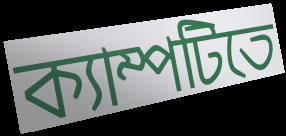
ক্যাম্পটিতে